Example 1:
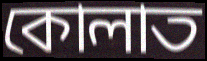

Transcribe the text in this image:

কোলাত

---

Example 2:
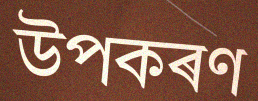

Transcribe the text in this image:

উপকৰণ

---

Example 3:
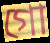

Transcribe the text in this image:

গো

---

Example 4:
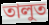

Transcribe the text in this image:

তালুত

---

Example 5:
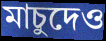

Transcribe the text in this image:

মাচুদেও